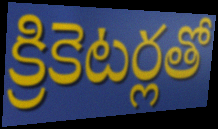
క్రికెటర్లతో